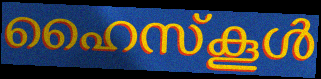
ഹൈസ്‌കൂൾ